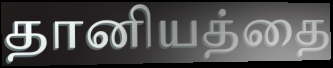
தானியத்தை